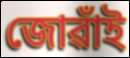
জোৱাঁই